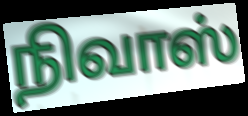
நிவாஸ்